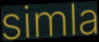
simla